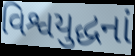
વિશ્વયુદ્ધનાં